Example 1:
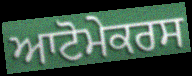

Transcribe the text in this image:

ਆਟੋਮੇਕਰਸ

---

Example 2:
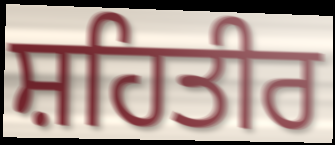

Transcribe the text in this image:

ਸ਼ਹਿਤੀਰ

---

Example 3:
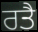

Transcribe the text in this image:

ਰਤੈ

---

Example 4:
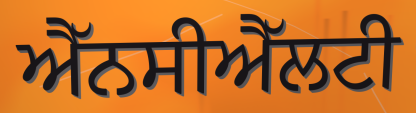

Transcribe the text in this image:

ਐੱਨਸੀਐੱਲਟੀ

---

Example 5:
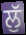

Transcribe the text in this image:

ਲੁੱ